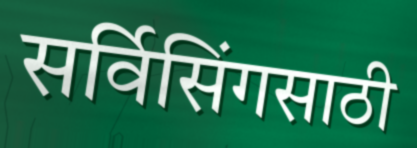
सर्विसिंगसाठी